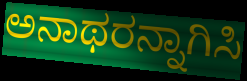
ಅನಾಥರನ್ನಾಗಿಸಿ